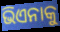
ଭିଏନାକୁ